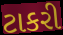
ટાકરી